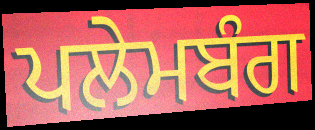
ਪਲੇਮਬੰਗ